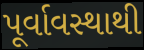
પૂર્વાવસ્થાથી